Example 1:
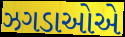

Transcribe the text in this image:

ઝગડાઓએ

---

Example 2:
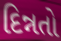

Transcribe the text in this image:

દિન્નતો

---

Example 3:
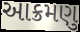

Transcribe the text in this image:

આક્રમણુ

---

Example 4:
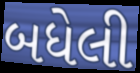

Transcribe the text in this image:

બધેલી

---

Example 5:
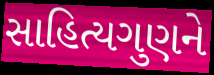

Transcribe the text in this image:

સાહિત્યગુણને